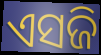
ଏସଜି